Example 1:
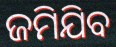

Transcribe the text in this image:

ଜମିଯିବ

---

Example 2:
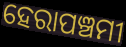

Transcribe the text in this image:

ହେରାପଞ୍ଚମୀ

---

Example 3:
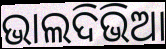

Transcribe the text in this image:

ଭାଲଦିଭିଆ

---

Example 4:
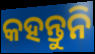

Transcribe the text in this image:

କହନ୍ତୁନି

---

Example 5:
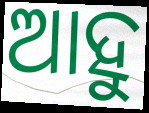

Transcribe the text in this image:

ଆହୁ